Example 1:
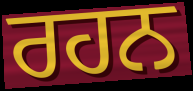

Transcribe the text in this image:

ਰਹਨ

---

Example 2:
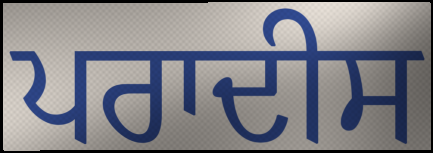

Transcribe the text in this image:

ਪਰਾਦੀਸ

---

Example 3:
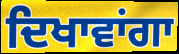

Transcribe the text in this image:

ਦਿਖਾਵਾਂਗਾ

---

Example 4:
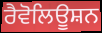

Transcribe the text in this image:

ਰੈਵੋਲਿਊਸ਼ਨ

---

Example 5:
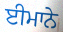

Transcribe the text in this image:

ਈਮਾਨੇ